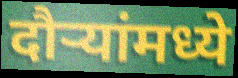
दौऱ्यांमध्ये